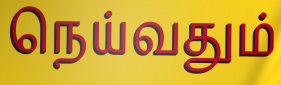
நெய்வதும்